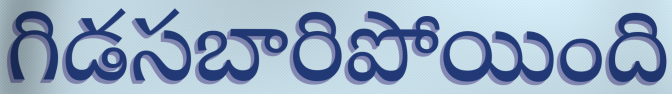
గిడసబారిపోయింది